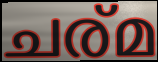
ചര്മ